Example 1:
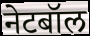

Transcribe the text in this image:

नेटबॉल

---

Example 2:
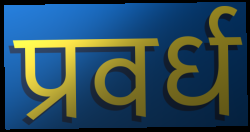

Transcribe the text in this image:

प्रवर्ध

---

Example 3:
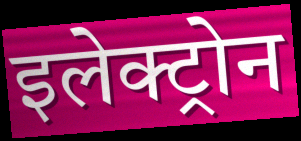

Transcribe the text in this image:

इलेक्ट्रोन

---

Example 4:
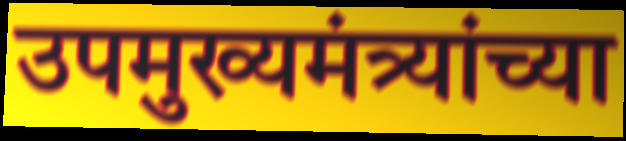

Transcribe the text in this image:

उपमुख्यमंत्र्यांच्या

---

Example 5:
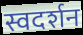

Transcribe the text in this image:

स्वदर्शन